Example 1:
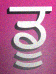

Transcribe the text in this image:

ਡੂ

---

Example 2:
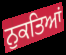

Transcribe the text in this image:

ਨੁਕਤਿਆਂ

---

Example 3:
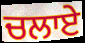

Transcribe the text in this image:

ਚਲਾਏ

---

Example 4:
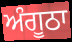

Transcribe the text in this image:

ਅੰਗੂਠਾ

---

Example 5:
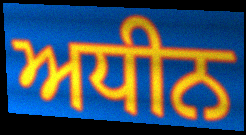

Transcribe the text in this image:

ਅਧੀਨ